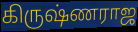
கிருஷ்ணராஜ